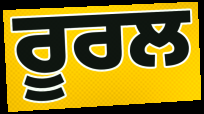
ਰੂਰਲ